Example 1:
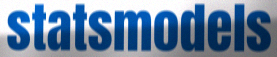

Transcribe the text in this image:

statsmodels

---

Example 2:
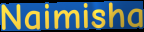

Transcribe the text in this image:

Naimisha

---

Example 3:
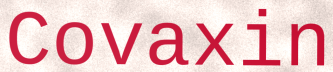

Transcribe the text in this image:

Covaxin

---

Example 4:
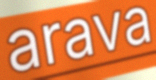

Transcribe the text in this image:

arava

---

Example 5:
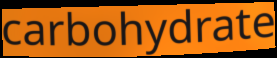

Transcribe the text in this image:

carbohydrate